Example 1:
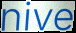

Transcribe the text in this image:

nive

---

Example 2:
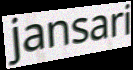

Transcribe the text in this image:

jansari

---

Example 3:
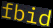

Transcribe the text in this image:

fbid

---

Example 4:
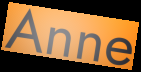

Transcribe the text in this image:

Anne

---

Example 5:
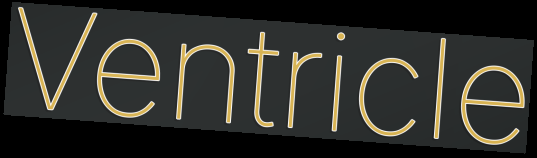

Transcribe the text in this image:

Ventricle